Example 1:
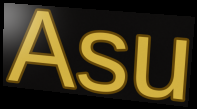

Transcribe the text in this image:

Asu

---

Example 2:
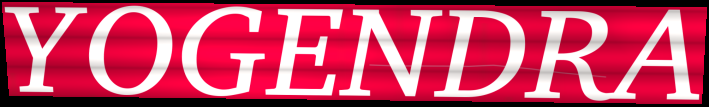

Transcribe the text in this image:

YOGENDRA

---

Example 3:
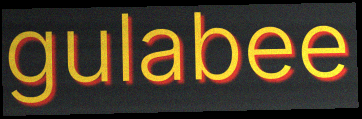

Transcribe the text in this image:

gulabee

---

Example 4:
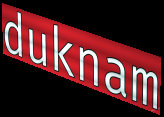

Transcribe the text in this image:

duknam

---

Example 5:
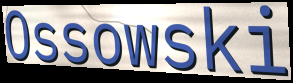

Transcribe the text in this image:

Ossowski